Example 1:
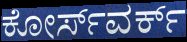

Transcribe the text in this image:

ಕೋರ್ಸ್‌ವರ್ಕ್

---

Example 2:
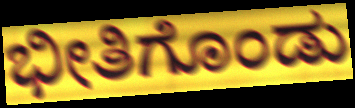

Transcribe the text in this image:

ಭೀತಿಗೊಂಡು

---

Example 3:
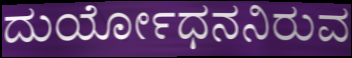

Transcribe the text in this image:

ದುರ್ಯೋಧನನಿರುವ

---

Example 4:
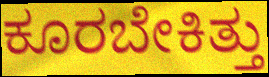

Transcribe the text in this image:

ಕೂರಬೇಕಿತ್ತು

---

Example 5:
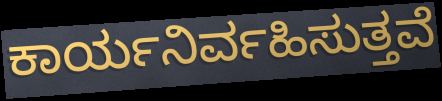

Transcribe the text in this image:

ಕಾರ್ಯನಿರ್ವಹಿಸುತ್ತವೆ